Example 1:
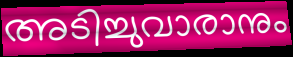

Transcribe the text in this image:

അടിച്ചുവാരാനും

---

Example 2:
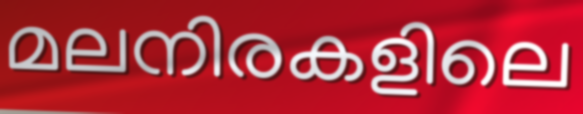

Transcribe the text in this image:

മലനിരകളിലെ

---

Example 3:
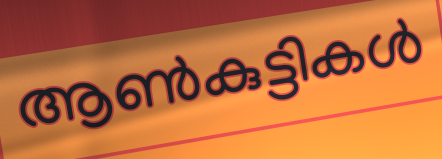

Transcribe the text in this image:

ആൺകുട്ടികൾ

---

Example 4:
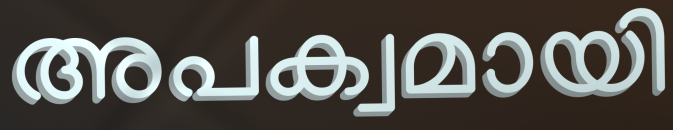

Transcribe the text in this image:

അപക്വമായി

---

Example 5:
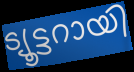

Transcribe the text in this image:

ട്യൂട്ടറായി